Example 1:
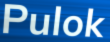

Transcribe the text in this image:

Pulok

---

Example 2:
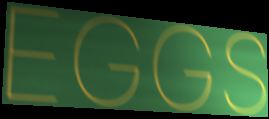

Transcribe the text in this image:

EGGS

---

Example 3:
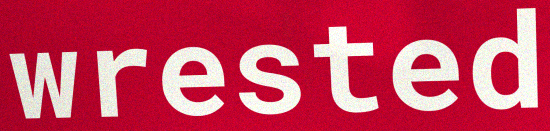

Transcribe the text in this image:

wrested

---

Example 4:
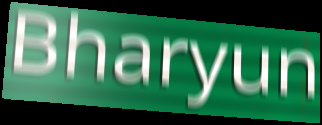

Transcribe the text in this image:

Bharyun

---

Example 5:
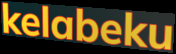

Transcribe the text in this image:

kelabeku